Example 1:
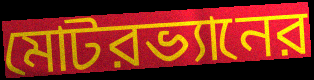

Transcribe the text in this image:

মোটরভ্যানের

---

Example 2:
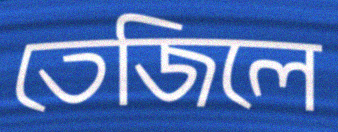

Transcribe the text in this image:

তেজিলে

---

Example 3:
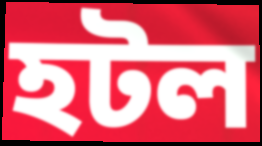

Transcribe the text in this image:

হটল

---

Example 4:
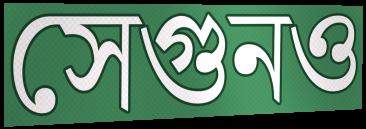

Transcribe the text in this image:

সেগুনও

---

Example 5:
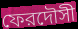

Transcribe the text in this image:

ফেরদৌসী